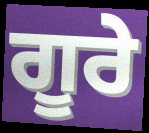
ਗੂਰੇ